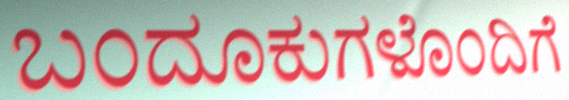
ಬಂದೂಕುಗಳೊಂದಿಗೆ